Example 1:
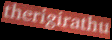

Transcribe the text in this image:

therigirathu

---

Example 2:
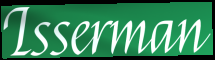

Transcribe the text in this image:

Isserman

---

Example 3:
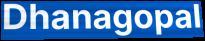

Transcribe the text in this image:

Dhanagopal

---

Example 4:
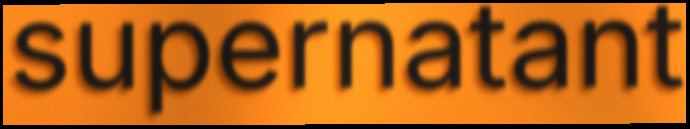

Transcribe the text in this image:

supernatant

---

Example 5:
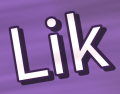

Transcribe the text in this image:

Lik